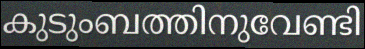
കുടുംബത്തിനുവേണ്ടി